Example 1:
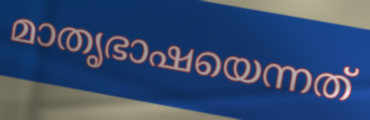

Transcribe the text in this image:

മാതൃഭാഷയെന്നത്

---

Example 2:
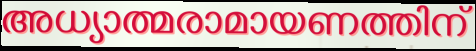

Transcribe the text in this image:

അധ്യാത്മരാമായണത്തിന്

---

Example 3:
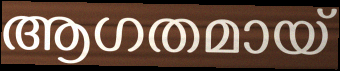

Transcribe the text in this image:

ആഗതമായ്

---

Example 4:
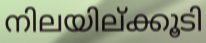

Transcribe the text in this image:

നിലയില്ക്കൂടി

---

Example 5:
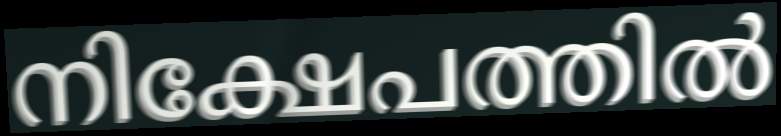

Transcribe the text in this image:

നിക്ഷേപത്തിൽ